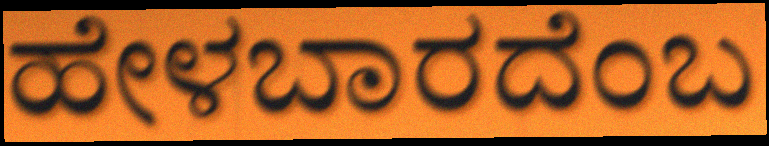
ಹೇಳಬಾರದೆಂಬ